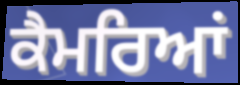
ਕੈਮਰਿਆਂ